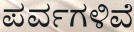
ಪರ್ವಗಳಿವೆ